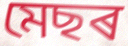
মেছৰ